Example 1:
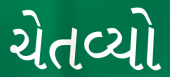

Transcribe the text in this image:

ચેતવ્યો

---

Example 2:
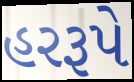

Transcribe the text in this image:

હરરૂપે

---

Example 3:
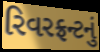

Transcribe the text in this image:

રિવરફ્રન્ટનું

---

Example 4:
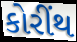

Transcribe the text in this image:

કોરીંથ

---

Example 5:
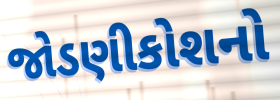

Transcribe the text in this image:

જોડણીકોશનો